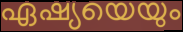
ഏഷ്യയെയും